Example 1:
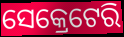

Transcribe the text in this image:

ସେକ୍ରେଟେରି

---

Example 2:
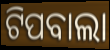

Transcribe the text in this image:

ଟିପବାଲା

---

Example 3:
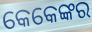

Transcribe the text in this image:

କେକେଙ୍କର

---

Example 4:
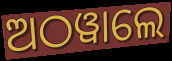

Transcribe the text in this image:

ଅଠୱାଲେ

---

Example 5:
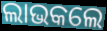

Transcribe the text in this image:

ଲାଭକଲେ